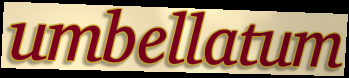
umbellatum